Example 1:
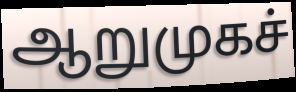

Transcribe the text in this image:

ஆறுமுகச்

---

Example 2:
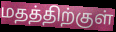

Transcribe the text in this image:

மதத்திற்குள்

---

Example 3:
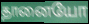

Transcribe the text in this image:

தானையோ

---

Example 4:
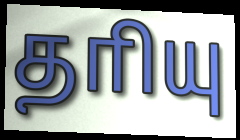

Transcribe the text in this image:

தரியு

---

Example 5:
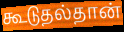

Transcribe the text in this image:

கூடுதல்தான்